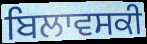
ਬਿਲਾਵਸਕੀ